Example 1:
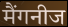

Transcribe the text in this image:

मैंगनीज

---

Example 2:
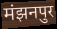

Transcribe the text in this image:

मंझनपुर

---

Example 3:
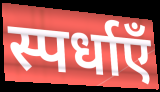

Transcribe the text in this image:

स्पर्धाएँ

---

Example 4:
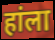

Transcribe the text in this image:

हांला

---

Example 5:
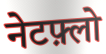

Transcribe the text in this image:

नेटफ़्लो